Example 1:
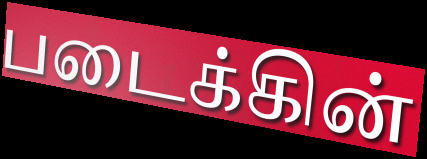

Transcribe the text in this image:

படைக்கின்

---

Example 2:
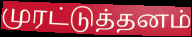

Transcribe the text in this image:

முரட்டுத்தனம்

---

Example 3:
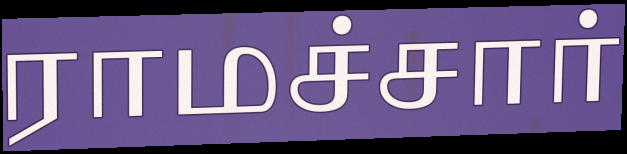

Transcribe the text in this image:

ராமச்சார்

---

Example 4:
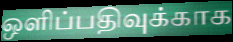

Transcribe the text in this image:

ஒளிப்பதிவுக்காக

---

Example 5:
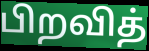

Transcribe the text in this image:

பிறவித்